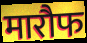
मारौफ